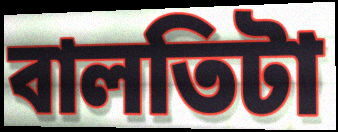
বালতিটা